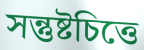
সন্তুষ্টচিত্তে